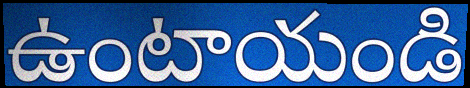
ఉంటాయండి